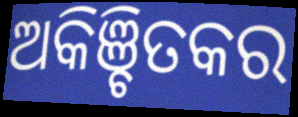
ଅକିଞ୍ଚିତକର